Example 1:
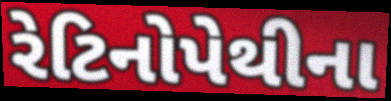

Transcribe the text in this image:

રેટિનોપેથીના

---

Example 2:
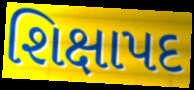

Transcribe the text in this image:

શિક્ષાપદ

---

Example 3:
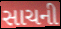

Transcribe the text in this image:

સાચની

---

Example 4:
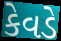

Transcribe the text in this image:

કેવડે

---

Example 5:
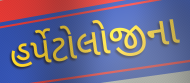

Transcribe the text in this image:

હર્પેટોલોજીના